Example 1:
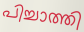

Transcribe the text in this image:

പിച്ചാത്തി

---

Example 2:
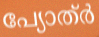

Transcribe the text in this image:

പ്യോത്ർ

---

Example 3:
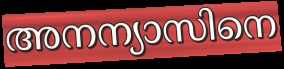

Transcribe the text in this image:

അനന്യാസിനെ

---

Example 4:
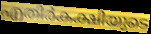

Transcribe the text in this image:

എതിർകക്ഷിയുടെ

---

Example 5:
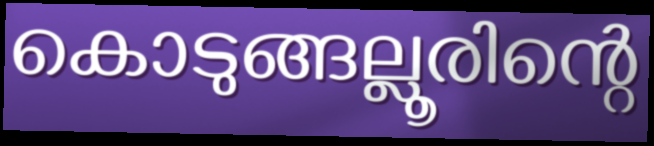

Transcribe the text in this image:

കൊടുങ്ങല്ലൂരിന്റെ